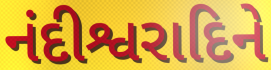
નંદીશ્વરાદિને